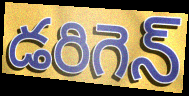
డరిగెన్